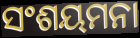
ସଂଶୟମନା